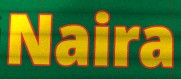
Naira